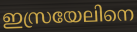
ഇസ്രയേലിനെ